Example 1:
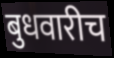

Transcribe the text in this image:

बुधवारीच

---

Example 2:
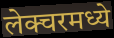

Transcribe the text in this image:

लेक्चरमध्ये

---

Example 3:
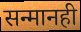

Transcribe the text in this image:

सन्मानही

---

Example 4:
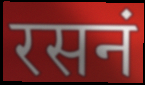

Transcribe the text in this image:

रसनं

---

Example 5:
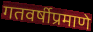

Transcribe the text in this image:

गतवर्षीप्रमाणे